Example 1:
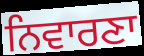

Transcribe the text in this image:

ਨਿਵਾਰਣਾ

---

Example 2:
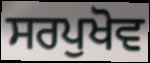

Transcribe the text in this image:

ਸਰਪੁਖੋਵ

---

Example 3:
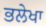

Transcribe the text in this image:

ਭਲੇਖਾ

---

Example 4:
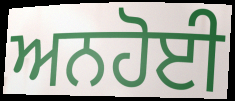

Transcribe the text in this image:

ਅਨਹੋਈ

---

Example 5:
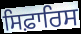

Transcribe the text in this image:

ਸਿਫ਼ਾਰਿਸ